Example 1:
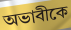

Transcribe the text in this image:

অভাবীকে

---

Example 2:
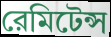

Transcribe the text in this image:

রেমিটেন্স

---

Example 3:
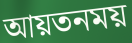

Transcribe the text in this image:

আয়তনময়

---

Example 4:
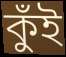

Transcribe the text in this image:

কুঁই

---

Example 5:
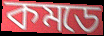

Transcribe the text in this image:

কমডে